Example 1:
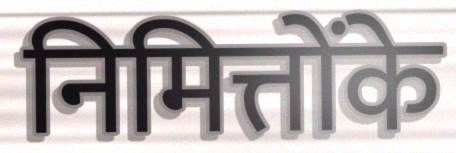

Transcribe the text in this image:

निमित्तोंके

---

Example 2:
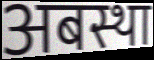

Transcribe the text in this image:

अबस्था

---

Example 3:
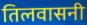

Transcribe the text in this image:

तिलवासनी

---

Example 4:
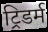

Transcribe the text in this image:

ट्रिडर्म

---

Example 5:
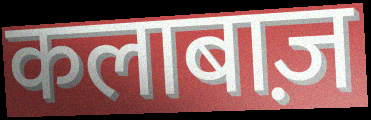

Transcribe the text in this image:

कलाबाज़